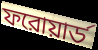
ফরোয়ার্ড